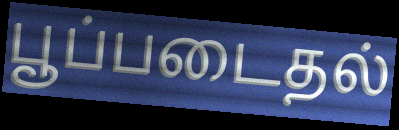
பூப்படைதல்